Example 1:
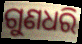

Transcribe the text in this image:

ଗୁଣଧରି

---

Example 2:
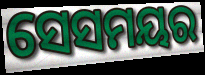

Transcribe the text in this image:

ସେସମୟର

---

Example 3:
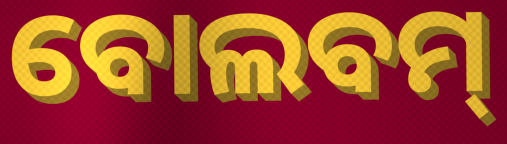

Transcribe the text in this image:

ବୋଲବମ୍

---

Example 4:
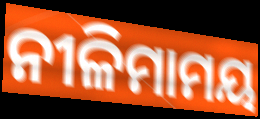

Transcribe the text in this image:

ନୀଳିମାମୟ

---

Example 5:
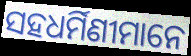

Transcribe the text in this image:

ସହଧର୍ମିଣୀମାନେ